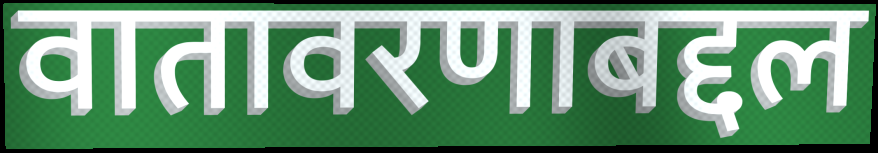
वातावरणाबद्दल